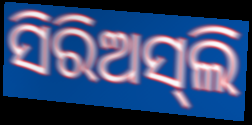
ସିରିଅସ୍‌ଲି